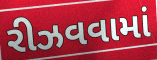
રીઝવવામાં